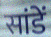
सांडें